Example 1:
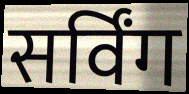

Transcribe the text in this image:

सर्विंग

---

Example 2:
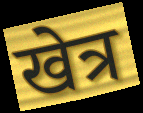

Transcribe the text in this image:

खेत्र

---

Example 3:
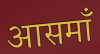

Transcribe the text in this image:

आसमाँ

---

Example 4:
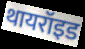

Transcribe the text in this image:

थायरॉइड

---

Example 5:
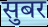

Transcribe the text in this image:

सुबर